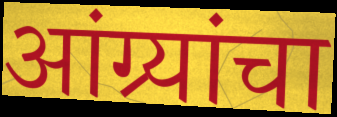
आंग्र्यांचा